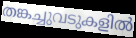
തങ്കച്ചുവടുകളിൽ